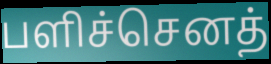
பளிச்செனத்